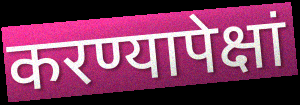
करण्यापेक्षां